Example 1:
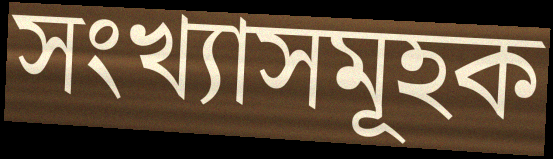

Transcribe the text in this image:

সংখ্যাসমূহক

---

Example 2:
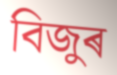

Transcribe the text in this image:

বিজুৰ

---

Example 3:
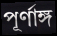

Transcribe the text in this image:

পূৰ্ণাঙ্গ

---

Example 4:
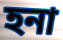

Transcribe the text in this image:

হনা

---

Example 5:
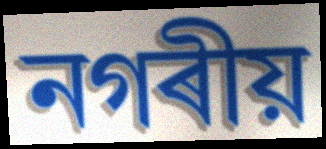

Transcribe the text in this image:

নগৰীয়